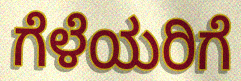
ಗೆಳೆಯರಿಗೆ